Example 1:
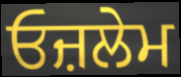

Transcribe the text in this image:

ਓਜ਼ਲੇਮ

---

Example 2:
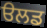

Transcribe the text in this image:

ੳਲਡ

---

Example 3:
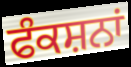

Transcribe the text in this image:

ਫੰਕਸ਼ਨਾਂ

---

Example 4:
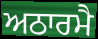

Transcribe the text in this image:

ਅਠਾਰਮੈ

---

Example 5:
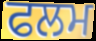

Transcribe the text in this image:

ਫਲਮ